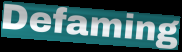
Defaming